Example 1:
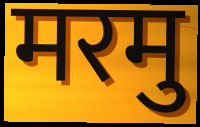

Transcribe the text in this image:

मरमु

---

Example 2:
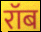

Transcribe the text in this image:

रॉब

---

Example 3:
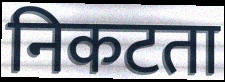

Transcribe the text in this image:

निकटता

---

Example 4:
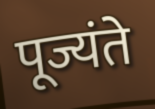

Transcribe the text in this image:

पूज्यंते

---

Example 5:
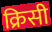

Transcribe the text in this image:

क्रिसी